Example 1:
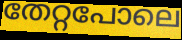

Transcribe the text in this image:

തേറ്റപോലെ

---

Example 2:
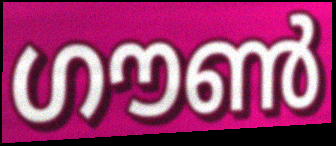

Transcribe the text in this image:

ഗൗൺ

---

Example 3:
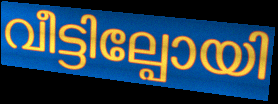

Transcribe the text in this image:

വീട്ടില്പോയി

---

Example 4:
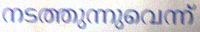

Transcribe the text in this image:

നടത്തുന്നുവെന്ന്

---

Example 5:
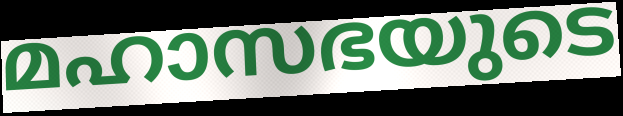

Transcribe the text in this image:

മഹാസഭയുടെ